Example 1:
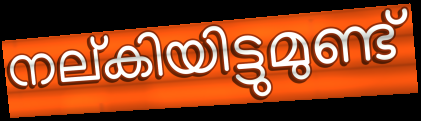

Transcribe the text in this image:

നല്കിയിട്ടുമുണ്ട്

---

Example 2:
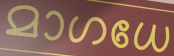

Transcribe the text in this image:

മാഗധേ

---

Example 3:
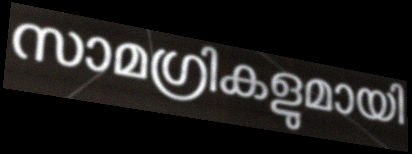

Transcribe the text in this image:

സാമഗ്രികളുമായി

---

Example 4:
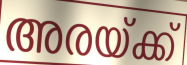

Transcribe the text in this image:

അരയ്‌ക്ക്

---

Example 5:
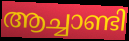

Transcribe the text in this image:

ആച്ചാണ്ടി